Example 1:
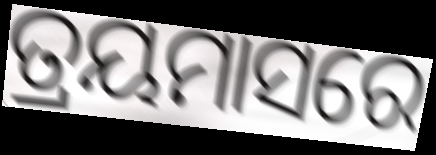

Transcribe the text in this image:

ତ୍ରୟମାସରେ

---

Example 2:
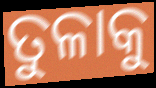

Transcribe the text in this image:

ତୁଳାକୁ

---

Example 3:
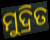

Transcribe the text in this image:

ମୁଦ୍ରିତ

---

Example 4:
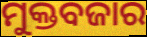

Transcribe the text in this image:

ମୁକ୍ତବଜାର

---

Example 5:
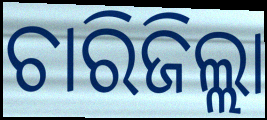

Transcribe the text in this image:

ଚାରିଜିଲ୍ଲା